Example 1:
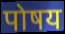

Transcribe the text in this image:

पोषय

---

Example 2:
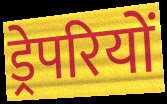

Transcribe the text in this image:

ड्रेपरियों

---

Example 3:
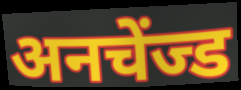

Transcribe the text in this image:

अनचेंज्ड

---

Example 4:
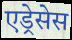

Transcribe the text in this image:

एड्रेसेस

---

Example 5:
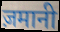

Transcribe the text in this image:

ज़मानी